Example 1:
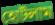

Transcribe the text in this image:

হোটলাম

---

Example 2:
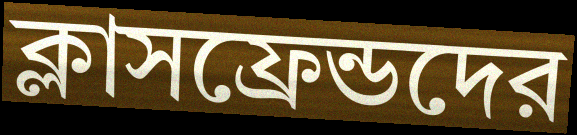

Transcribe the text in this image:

ক্লাসফ্রেন্ডদের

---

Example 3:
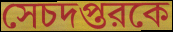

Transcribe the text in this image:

সেচদপ্তরকে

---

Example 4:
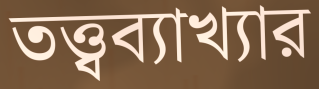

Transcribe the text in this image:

তত্ত্বব্যাখ্যার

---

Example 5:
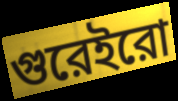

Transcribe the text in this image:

গুরেইরো